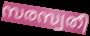
സരസ്വതീ